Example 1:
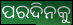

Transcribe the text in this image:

ପରଦିନକୁ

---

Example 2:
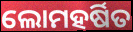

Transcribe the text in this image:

ଲୋମହର୍ଷିତ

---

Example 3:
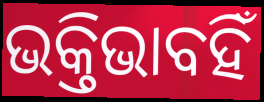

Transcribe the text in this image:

ଭକ୍ତିଭାବହିଁ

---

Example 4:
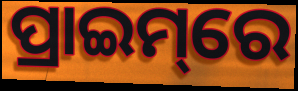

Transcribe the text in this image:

ପ୍ରାଇମ୍‌ରେ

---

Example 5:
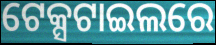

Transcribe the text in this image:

ଟେକ୍ସଟାଇଲରେ